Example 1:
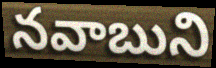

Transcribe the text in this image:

నవాబుని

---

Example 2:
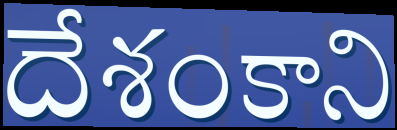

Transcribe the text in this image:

దేశంకాని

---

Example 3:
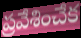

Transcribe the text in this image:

ప్రవేశించేక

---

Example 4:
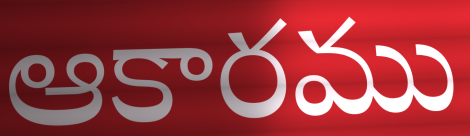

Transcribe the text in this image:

ఆకారము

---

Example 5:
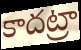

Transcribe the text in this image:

కాదట్రా